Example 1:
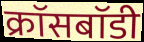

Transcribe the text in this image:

क्रॉसबॉडी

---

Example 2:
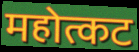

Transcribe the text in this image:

महोत्कट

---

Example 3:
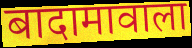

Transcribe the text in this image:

बादामावाला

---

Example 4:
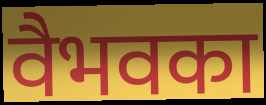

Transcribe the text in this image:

वैभवका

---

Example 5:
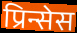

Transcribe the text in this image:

प्रिन्सेस